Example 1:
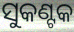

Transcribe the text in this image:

ସୁକଣ୍ଟକ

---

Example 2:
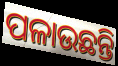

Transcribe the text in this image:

ପଳାଉଛନ୍ତି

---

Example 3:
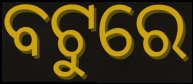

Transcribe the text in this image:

ବଟୁରେ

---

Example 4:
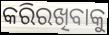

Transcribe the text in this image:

କରିରଖିବାକୁ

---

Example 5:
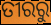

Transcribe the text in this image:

ତୀରରୁ